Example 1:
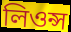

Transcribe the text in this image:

লিওন্স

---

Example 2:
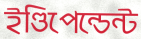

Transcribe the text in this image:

ইণ্ডিপেন্ডেন্ট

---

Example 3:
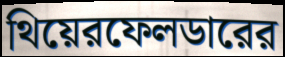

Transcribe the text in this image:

থিয়েরফেলডারের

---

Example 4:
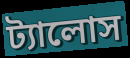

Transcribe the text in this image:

ট্যালোস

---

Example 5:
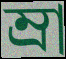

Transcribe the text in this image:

ম্রা